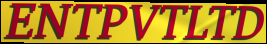
ENTPVTLTD